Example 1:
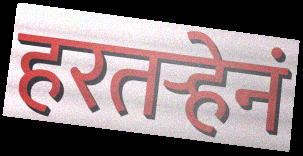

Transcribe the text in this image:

हरतर्‍हेनं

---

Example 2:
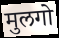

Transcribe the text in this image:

मुलगो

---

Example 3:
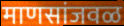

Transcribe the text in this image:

माणसांजवळ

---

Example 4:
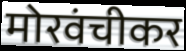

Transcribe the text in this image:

मोरवंचीकर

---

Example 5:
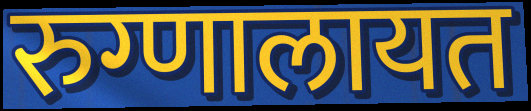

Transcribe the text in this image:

रुग्णालायत